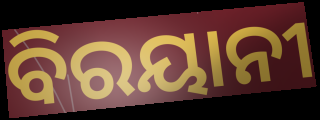
ବିରୟାନୀ